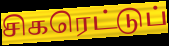
சிகரெட்டுப்